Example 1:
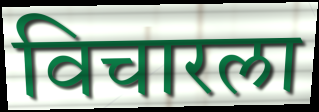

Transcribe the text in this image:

विचारला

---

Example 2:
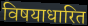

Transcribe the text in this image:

विषयाधारित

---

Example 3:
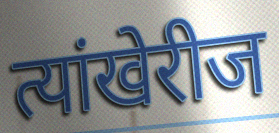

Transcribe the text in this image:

त्यांखेरीज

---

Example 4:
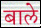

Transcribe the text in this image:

बाले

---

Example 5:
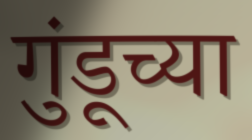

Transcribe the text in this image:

गुंडूच्या